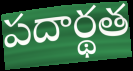
పదార్థత